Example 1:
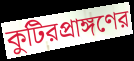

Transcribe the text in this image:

কুটিরপ্রাঙ্গণের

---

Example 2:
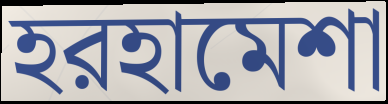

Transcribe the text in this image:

হরহামেশা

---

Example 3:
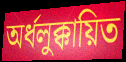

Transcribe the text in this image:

অর্ধলুক্কায়িত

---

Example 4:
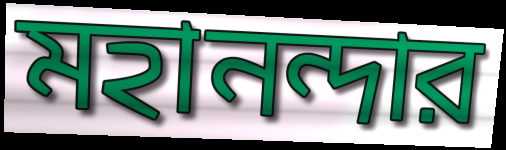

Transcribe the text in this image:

মহানন্দার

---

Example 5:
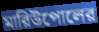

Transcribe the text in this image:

মারিউপোলের